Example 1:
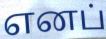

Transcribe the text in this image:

எனப்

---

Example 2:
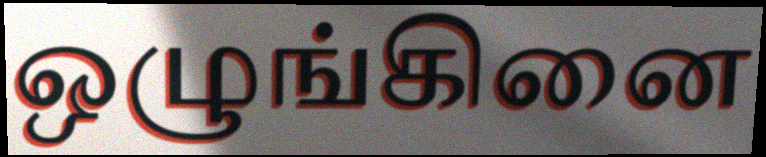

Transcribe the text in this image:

ஒழுங்கினை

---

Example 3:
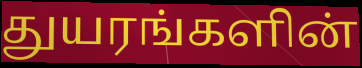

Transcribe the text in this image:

துயரங்களின்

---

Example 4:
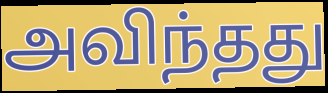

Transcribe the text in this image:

அவிந்தது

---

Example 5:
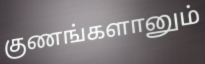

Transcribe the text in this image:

குணங்களானும்